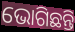
ଭୋଗିଛନ୍ତି